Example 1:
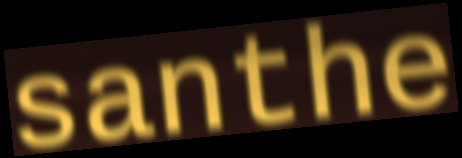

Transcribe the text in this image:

santhe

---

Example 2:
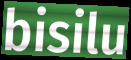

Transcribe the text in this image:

bisilu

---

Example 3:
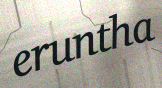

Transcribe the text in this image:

eruntha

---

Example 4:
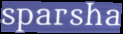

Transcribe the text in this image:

sparsha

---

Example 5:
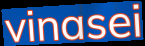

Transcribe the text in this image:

vinasei